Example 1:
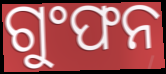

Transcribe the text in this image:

ଗୁଂଫନ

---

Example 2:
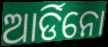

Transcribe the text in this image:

ଆର୍ଡିନୋ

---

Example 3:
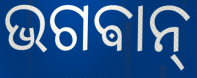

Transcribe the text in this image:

ଭଗଵାନ୍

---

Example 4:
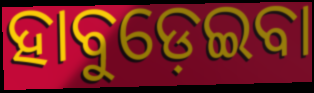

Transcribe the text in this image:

ହାବୁଡ଼େଇବା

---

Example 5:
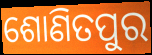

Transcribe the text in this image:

ଶୋଣିତପୁର